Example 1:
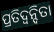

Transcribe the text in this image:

ପ୍ରତିଦ୍ଵନ୍ଦିତା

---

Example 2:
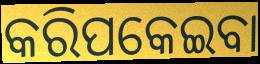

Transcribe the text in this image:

କରିପକେଇବା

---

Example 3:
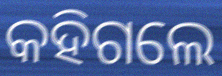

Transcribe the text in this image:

କହିଗଲେ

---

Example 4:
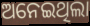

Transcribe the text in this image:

ଅନେଇଥିଲା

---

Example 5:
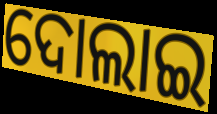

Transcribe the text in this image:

ଦୋଲାଇ